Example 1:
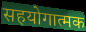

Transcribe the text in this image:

सहयोगात्मक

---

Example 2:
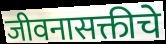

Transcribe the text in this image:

जीवनासक्तीचे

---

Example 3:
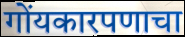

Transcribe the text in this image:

गोंयकारपणाचा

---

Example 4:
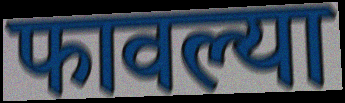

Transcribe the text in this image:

फावल्या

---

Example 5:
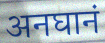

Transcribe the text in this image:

अनघानं